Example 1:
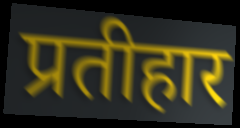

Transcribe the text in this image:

प्रतीहार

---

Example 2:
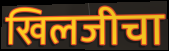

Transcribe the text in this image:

खिलजीचा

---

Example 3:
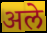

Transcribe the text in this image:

अले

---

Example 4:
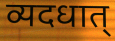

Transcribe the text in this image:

व्यदधात्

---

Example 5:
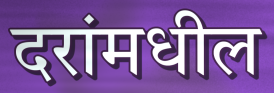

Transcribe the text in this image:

दरांमधील